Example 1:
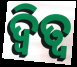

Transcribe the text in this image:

ଦ୍ୱିତ୍ୱ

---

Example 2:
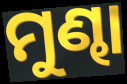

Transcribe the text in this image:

ମୁଣ୍ଢା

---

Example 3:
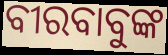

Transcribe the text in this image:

ବୀରବାବୁଙ୍କ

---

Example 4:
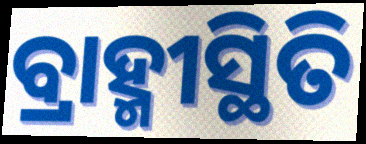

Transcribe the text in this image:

ବ୍ରାହ୍ମୀସ୍ଥିତି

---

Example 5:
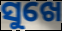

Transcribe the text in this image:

ସୁଖେ